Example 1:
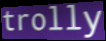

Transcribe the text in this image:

trolly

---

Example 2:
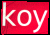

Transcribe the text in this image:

koy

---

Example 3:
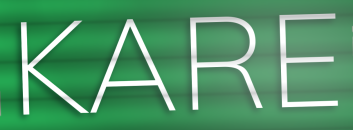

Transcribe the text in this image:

KARE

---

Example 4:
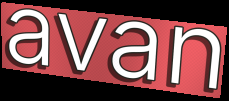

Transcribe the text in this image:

avan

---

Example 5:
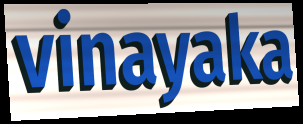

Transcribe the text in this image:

vinayaka